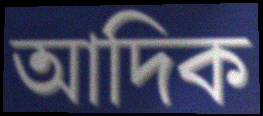
আদিক